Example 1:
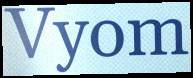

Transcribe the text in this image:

Vyom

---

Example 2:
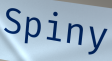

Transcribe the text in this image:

Spiny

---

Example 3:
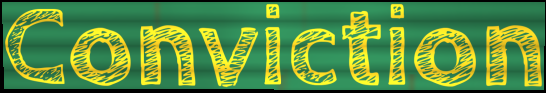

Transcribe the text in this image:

Conviction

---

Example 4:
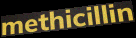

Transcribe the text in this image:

methicillin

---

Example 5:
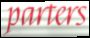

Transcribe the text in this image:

parters